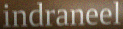
indraneel